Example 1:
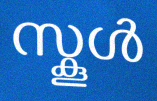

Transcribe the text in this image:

സ്കൂൾ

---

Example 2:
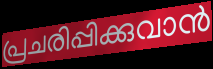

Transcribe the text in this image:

പ്രചരിപ്പിക്കുവാൻ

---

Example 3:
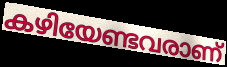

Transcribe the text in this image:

കഴിയേണ്ടവരാണ്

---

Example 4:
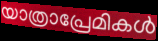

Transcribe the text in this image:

യാത്രാപ്രേമികൾ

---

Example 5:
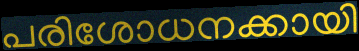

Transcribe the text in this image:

പരിശോധനക്കായി